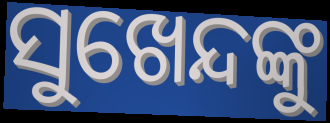
ସୁଖେନ୍ଦଙ୍କୁ